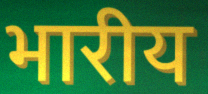
भारीय